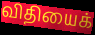
விதியைக்